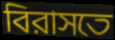
বিরাসতে